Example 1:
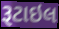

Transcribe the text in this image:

રૂટાઇલ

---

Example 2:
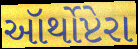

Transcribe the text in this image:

ઑર્થોપ્ટેરા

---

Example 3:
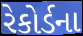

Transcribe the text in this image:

રેકોર્ડના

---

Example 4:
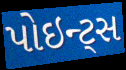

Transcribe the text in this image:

પોઇન્ટ્સ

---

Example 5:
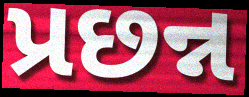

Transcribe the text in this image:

પ્રછન્ન